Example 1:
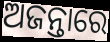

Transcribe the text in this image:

ଅଜନ୍ତାରେ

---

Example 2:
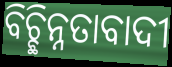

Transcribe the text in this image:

ବିଚ୍ଛିନ୍ନତାବାଦୀ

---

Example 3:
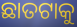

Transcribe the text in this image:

ଛାତଟାକୁ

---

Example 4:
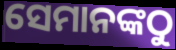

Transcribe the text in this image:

ସେମାନଙ୍କଠୁ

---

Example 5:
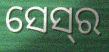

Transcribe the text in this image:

ସେସ୍‌ର